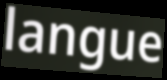
langue